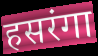
हसरंगा